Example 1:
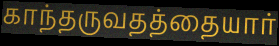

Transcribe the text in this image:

காந்தருவதத்தையார்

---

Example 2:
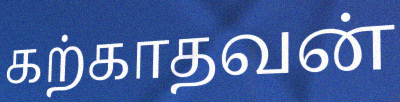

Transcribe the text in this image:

கற்காதவன்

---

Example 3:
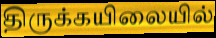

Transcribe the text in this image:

திருக்கயிலையில்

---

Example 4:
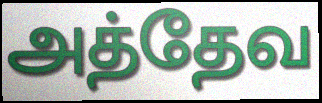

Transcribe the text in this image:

அத்தேவ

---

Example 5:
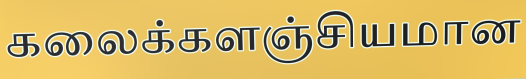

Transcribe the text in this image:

கலைக்களஞ்சியமான